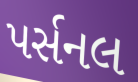
પર્સનલ